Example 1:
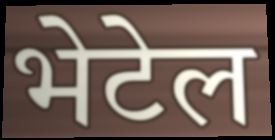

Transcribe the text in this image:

भेटेल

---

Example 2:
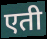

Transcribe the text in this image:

एती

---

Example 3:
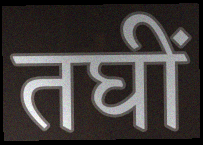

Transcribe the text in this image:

तघीं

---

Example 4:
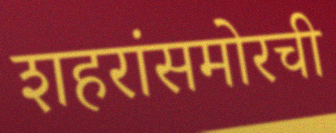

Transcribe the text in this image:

शहरांसमोरची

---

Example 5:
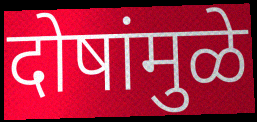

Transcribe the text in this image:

दोषांमुळे